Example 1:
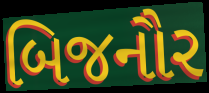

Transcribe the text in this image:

બિજનૌર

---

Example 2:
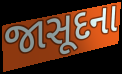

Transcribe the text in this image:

જાસૂદના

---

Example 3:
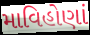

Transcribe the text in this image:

માવિહોણાં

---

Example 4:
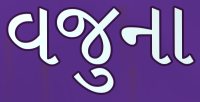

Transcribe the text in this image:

વજુના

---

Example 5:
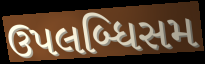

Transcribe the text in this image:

ઉપલબ્ધિસમ